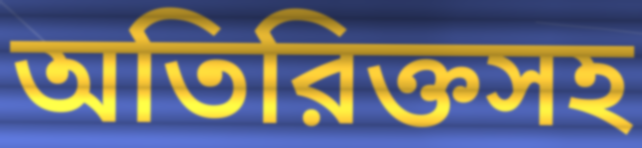
অতিরিক্তসহ